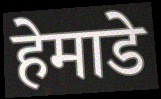
हेमाडे